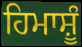
ਹਿਮਾਸ਼ੂੰ